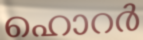
ഹൊറർ